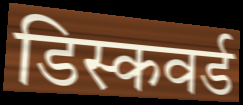
डिस्कवर्ड